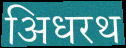
अिधरथ